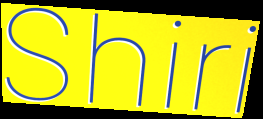
Shiri